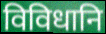
विविधानि